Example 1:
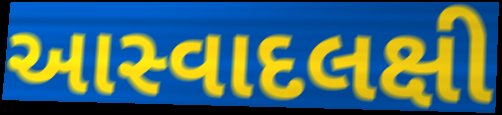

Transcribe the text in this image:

આસ્વાદલક્ષી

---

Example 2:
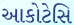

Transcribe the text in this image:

આકોટેસિ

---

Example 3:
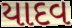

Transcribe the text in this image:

યાદવ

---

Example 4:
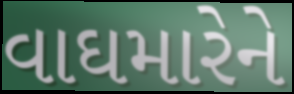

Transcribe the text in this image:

વાઘમારેને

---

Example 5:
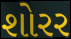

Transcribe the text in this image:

શોરર